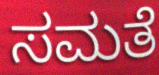
ಸಮತೆ